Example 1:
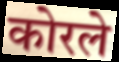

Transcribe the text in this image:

कोरले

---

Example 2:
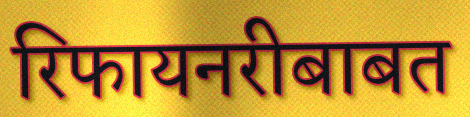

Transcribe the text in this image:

रिफायनरीबाबत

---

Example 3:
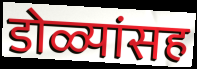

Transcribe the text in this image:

डोळ्यांसह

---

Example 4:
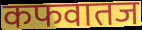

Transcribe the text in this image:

कफवातज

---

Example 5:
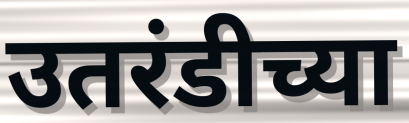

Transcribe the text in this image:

उतरंडीच्या